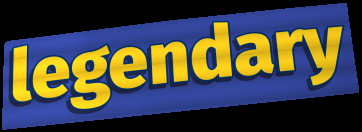
legendary